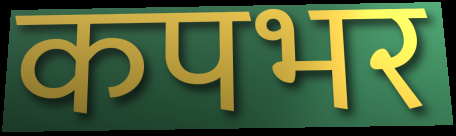
कपभर